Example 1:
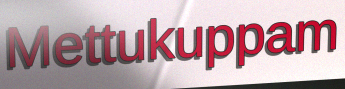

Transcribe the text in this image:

Mettukuppam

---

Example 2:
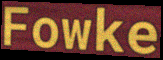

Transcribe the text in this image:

Fowke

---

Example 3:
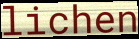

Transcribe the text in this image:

lichen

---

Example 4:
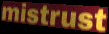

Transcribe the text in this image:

mistrust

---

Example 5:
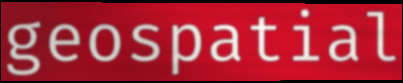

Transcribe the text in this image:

geospatial